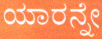
ಯಾರನ್ನೇ